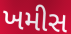
ખમીસ